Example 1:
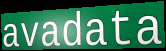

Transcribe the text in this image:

avadata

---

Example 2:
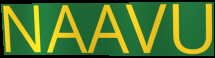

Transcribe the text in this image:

NAAVU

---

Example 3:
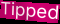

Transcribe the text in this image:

Tipped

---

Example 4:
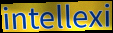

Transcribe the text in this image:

intellexi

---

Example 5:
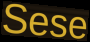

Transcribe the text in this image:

Sese